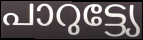
പാറുട്ട്യേ